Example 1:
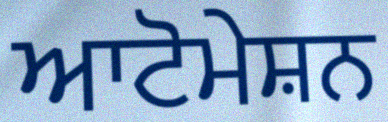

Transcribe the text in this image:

ਆਟੋਮੇਸ਼ਨ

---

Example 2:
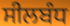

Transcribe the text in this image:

ਸੀਲਬੰਧ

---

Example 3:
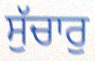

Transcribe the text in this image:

ਸੁੱਚਾਰੁ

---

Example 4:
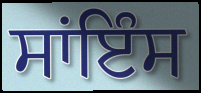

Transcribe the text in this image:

ਸਾਂਇੰਸ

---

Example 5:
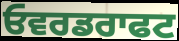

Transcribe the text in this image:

ਓਵਰਡਰਾਫਟ